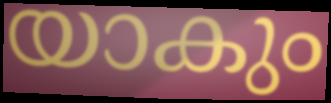
യാകും